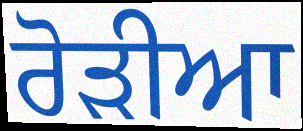
ਰੋੜੀਆ